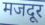
मजदूर